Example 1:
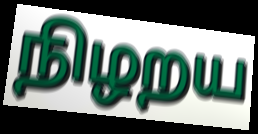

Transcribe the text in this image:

நிழறய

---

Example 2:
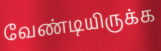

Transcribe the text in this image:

வேண்டியிருக்க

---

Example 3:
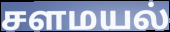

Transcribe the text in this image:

சளமயல்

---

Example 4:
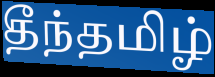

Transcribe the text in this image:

தீந்தமிழ்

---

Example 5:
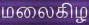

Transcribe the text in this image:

மலைகிழ